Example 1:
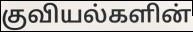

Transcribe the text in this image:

குவியல்களின்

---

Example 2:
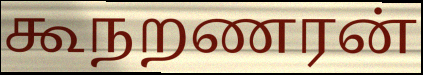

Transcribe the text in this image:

கூநறணரன்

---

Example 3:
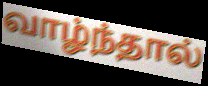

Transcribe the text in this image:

வாழ்ந்தால்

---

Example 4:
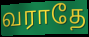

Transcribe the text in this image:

வராதே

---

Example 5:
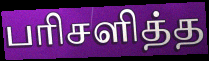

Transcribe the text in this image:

பரிசளித்த